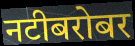
नटीबरोबर